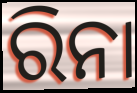
ରିନା